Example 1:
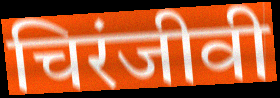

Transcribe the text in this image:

चिरंजीवी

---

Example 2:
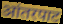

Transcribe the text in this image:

आंतरपाट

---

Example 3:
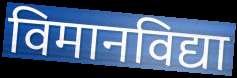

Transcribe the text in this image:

विमानविद्या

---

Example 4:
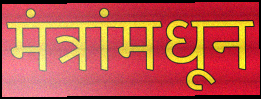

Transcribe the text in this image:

मंत्रांमधून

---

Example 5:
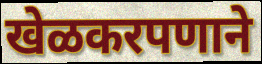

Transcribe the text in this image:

खेळकरपणाने